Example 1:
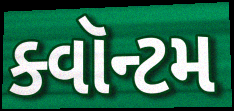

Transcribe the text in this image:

ક્વૉન્ટમ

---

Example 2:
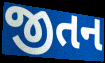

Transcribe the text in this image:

જીતન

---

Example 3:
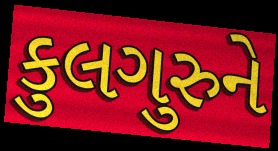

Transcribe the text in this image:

કુલગુરુને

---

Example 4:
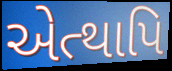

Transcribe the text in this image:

એત્થાપિ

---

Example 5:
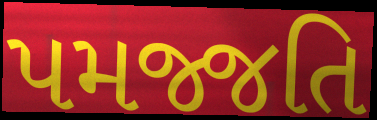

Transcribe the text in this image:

પમજ્જતિ